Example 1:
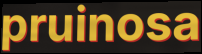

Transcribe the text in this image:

pruinosa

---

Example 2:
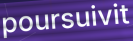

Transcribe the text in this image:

poursuivit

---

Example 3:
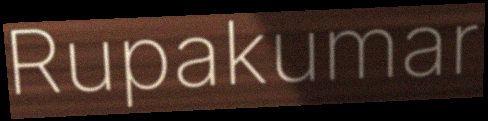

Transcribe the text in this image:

Rupakumar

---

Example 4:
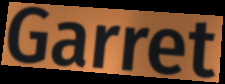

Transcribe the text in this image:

Garret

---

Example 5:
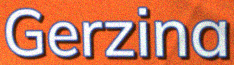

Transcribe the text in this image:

Gerzina